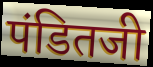
पंडितजी